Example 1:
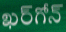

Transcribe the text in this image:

ఖర్‌గోన్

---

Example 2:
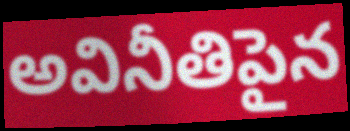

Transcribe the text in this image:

అవినీతిపైన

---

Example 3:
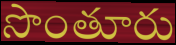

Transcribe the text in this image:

సొంతూరు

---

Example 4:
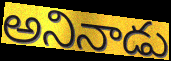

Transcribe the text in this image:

అనినాడు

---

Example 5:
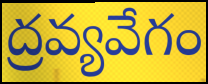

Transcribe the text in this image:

ద్రవ్యవేగం